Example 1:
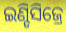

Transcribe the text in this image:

ଇଣ୍ଡିସିଜ୍ରେ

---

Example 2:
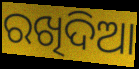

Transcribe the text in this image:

ରଖିଦିଆ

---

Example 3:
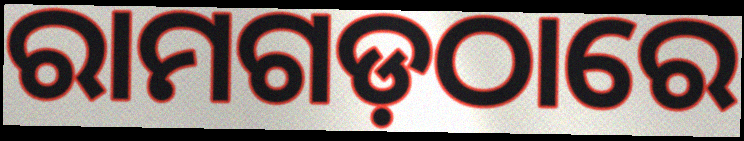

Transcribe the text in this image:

ରାମଗଡ଼ଠାରେ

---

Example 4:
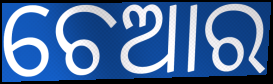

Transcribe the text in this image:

ଚେଆର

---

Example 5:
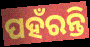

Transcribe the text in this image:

ପହଁରନ୍ତି